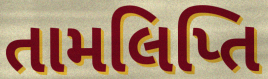
તામલિપ્તિ